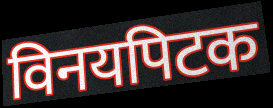
विनयपिटक